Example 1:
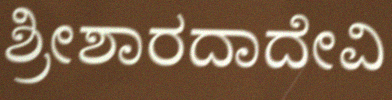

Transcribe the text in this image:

ಶ್ರೀಶಾರದಾದೇವಿ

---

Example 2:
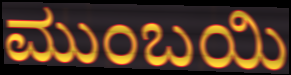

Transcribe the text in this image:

ಮುಂಬಯಿ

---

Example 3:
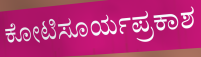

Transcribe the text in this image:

ಕೋಟಿಸೂರ್ಯಪ್ರಕಾಶ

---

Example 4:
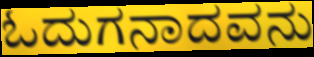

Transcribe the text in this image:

ಓದುಗನಾದವನು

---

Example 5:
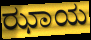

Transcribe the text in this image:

ಝಾಯ